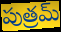
పుత్రమ్